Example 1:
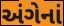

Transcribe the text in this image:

અંગેનાં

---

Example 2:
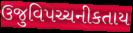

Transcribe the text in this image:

ઉજુવિપચ્ચનીકતાય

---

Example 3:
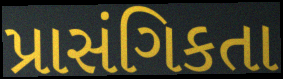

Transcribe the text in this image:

પ્રાસંગિકતા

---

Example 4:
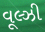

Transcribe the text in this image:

વૂલ્ઝી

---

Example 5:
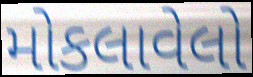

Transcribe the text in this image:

મોકલાવેલો